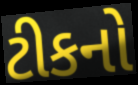
ટીકનો